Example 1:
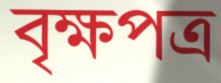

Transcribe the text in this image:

বৃক্ষপত্র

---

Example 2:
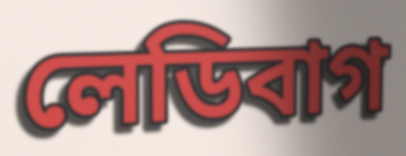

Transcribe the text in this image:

লেডিবাগ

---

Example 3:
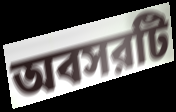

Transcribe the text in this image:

অবসরটি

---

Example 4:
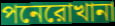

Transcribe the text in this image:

পনেরোখানা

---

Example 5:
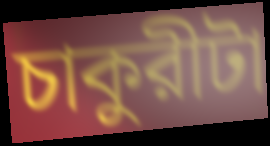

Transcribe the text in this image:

চাকুরীটা